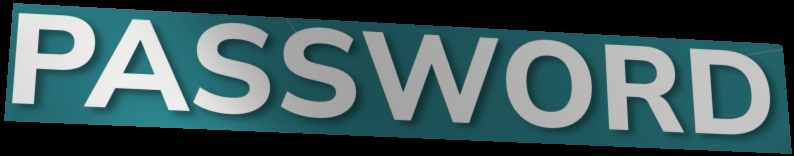
PASSWORD